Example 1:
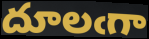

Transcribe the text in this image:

దూలఁగా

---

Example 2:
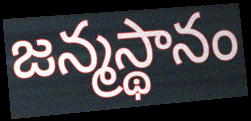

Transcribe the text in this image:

జన్మస్థానం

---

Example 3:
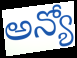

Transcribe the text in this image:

అన్యో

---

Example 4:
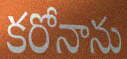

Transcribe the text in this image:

కరోనాను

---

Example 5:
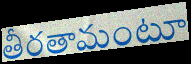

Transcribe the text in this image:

తీరతామంటూ